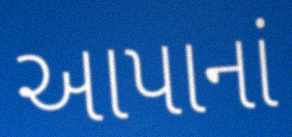
આપાનાં